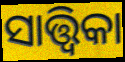
ସାତ୍ତ୍ୱିକା